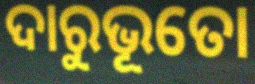
ଦାରୁଭୂତୋ